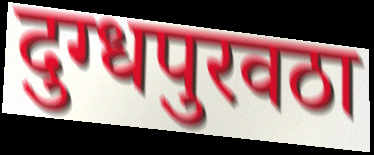
दुग्धपुरवठा